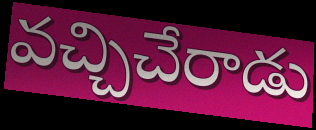
వచ్చిచేరాడు